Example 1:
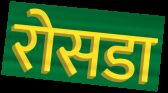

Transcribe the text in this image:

रोसडा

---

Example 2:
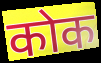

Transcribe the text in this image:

कोक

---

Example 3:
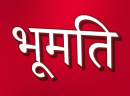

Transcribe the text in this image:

भूमति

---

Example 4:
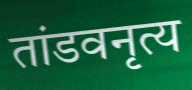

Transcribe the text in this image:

तांडवनृत्य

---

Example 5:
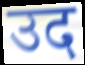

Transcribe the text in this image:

उद